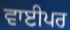
ਵਾਈਪਰ